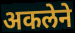
अकलेने